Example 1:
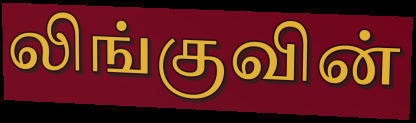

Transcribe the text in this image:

லிங்குவின்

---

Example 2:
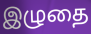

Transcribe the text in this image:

இழுதை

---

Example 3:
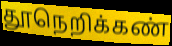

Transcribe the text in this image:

தூநெறிக்கண்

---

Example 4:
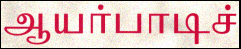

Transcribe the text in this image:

ஆயர்பாடிச்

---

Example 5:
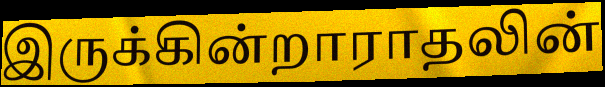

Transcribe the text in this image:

இருக்கின்றாராதலின்